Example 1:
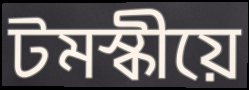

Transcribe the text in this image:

টমস্কীয়ে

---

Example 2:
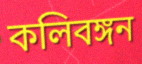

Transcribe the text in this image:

কলিবঙ্গন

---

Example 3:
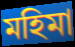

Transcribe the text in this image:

মহিমা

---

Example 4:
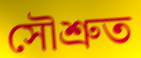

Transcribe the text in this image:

সৌশ্ৰুত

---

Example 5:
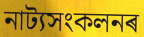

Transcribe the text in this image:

নাট্যসংকলনৰ